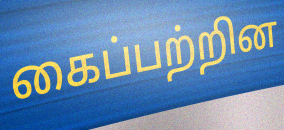
கைப்பற்றின